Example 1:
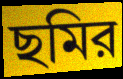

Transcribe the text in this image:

ছমির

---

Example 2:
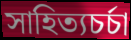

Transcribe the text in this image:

সাহিত্যচর্চা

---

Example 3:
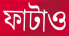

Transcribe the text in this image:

ফাটাও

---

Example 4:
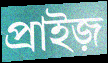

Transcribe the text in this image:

প্রাইজ়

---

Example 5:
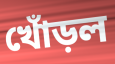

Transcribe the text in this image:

খোঁড়ল